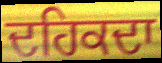
ਦਹਿਕਦਾ